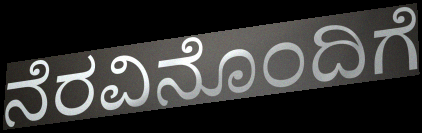
ನೆರವಿನೊಂದಿಗೆ